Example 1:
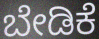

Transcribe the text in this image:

ಬೇಡಿಕೆ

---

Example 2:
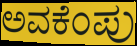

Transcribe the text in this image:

ಅವಕೆಂಪು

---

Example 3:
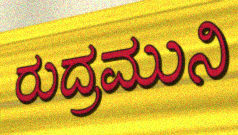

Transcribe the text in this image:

ರುದ್ರಮುನಿ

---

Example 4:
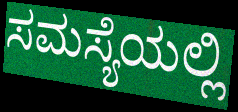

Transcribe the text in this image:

ಸಮಸ್ಯೆಯಲ್ಲಿ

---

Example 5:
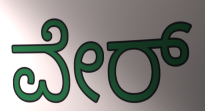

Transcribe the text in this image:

ವೇರ್